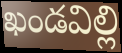
ఖండవిల్లి